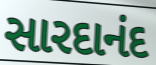
સારદાનંદ